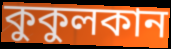
কুকুলকান